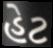
હેટ